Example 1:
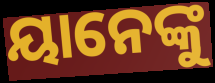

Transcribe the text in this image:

ୟାନେଙ୍କୁ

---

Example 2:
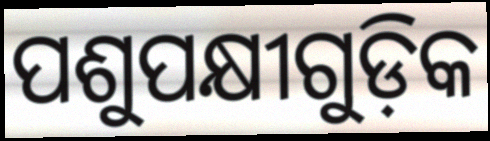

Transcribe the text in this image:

ପଶୁପକ୍ଷୀଗୁଡ଼ିକ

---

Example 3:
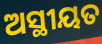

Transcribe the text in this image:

ଅସ୍ଥୀୟତ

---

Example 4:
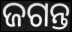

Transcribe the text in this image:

ଜଗନ୍ତ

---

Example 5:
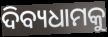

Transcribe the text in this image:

ଦିବ୍ୟଧାମକୁ